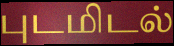
புடமிடல்